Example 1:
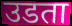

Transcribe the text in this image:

उडता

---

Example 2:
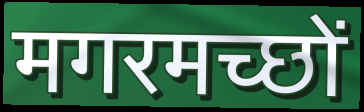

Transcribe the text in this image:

मगरमच्छों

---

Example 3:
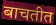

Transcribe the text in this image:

बाचतीत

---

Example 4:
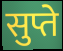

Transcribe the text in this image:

सुप्ते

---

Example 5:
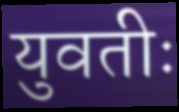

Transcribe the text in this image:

युवतीः